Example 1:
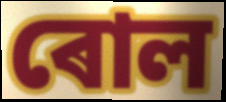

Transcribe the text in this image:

ৰোল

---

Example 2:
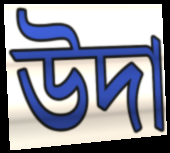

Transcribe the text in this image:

উদা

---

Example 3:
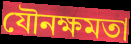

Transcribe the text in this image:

যৌনক্ষমতা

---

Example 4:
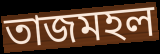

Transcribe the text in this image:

তাজমহল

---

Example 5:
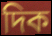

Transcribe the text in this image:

দিক